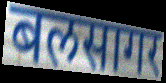
बलसागर